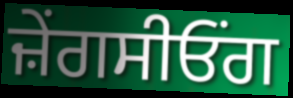
ਜ਼ੇਂਗਸੀਓਂਗ